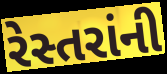
રેસ્તરાંની